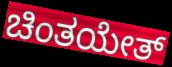
ಚಿಂತಯೇತ್